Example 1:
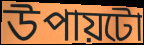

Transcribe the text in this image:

উপায়টো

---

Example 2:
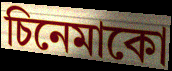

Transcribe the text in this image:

চিনেমাকো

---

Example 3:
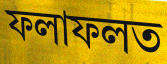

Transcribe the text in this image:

ফলাফলত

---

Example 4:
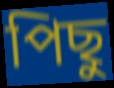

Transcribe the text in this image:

পিছু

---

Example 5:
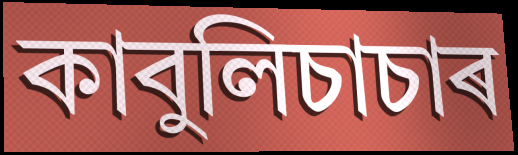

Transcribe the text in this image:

কাবুলিচাচাৰ